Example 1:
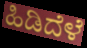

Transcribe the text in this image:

ಹಿಡಿದೆಳೆ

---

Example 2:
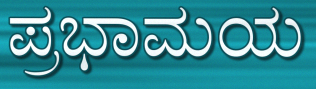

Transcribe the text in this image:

ಪ್ರಭಾಮಯ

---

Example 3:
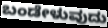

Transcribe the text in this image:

ಬಂಡೇಳುವುದು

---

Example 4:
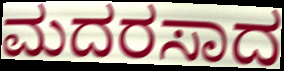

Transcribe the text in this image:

ಮದರಸಾದ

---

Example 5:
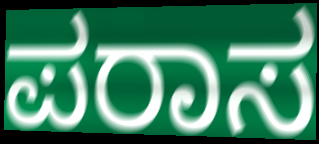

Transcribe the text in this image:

ಪರಾಸ